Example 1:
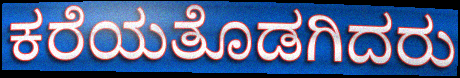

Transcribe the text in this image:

ಕರೆಯತೊಡಗಿದರು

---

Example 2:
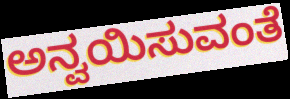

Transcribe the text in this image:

ಅನ್ವಯಿಸುವಂತೆ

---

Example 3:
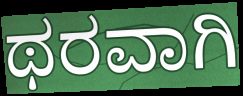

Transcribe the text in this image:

ಥರವಾಗಿ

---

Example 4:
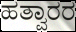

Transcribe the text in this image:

ಹತ್ವಾರರ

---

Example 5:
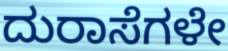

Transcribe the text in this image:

ದುರಾಸೆಗಳೇ